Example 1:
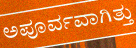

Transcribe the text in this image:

ಅಪೂರ್ವವಾಗಿತ್ತು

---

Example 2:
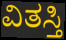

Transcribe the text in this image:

ವಿತಸ್ತಿ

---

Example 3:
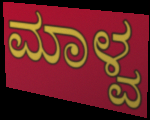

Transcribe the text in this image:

ಮಾಳ್ವ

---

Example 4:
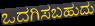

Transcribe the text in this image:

ಒದಗಿಸಬಹುದು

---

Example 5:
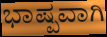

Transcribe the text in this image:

ಭಾಷ್ಪವಾಗಿ